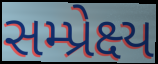
સમ્પ્રેક્ષ્ય